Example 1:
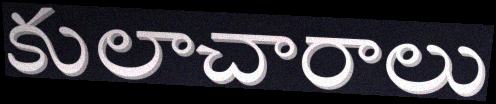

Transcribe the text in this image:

కులాచారాలు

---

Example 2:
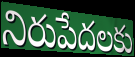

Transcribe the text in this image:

నిరుపేదలకు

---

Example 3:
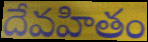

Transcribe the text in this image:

దేవహితం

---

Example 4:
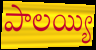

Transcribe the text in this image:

పాలయ్యి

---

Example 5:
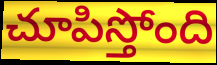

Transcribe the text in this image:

చూపిస్తోంది